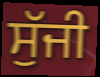
ਸੁੱਜੀ